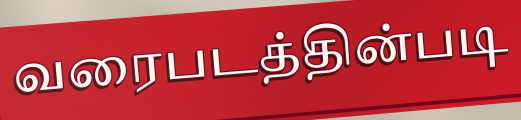
வரைபடத்தின்படி